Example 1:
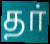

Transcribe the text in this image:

தர்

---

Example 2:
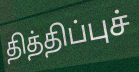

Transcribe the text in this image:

தித்திப்புச்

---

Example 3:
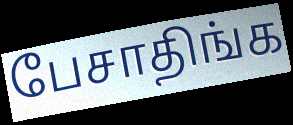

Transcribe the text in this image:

பேசாதிங்க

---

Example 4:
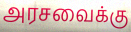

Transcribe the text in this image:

அரசவைக்கு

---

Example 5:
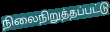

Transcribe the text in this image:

நிலைநிறுத்தப்பட்டு